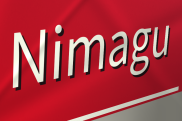
Nimagu